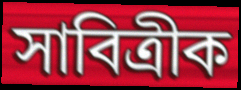
সাবিত্ৰীক